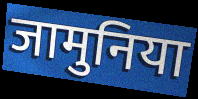
जामुनिया